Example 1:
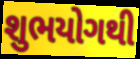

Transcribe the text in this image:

શુભયોગથી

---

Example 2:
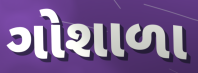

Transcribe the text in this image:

ગોશાળા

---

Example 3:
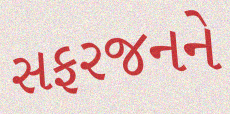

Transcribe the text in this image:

સફરજનને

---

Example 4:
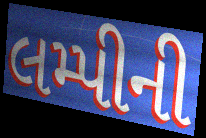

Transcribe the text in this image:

લમ્પીની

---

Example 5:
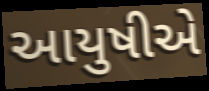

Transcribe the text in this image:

આયુષીએ